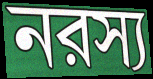
নরস্য